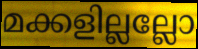
മക്കളില്ലല്ലോ